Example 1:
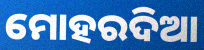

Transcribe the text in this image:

ମୋହରଦିଆ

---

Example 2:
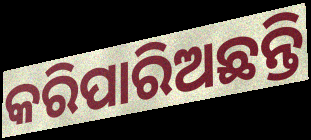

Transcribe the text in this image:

କରିପାରିଅଛନ୍ତି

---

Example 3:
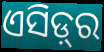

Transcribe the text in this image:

ଏସିଡ଼୍‌ର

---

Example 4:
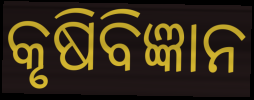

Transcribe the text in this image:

କୃଷିବିଜ୍ଞାନ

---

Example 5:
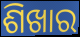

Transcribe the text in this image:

ଶିଖାର